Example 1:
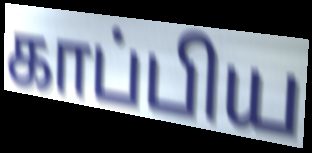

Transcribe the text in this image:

காப்பிய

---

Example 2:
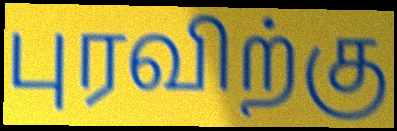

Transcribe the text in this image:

புரவிற்கு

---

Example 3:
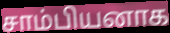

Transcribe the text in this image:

சாம்பியனாக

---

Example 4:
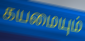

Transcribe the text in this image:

கயமையும்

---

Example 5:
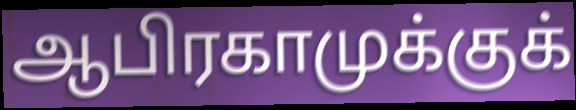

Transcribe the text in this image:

ஆபிரகாமுக்குக்